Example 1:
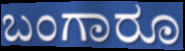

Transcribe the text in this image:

ಬಂಗಾರೂ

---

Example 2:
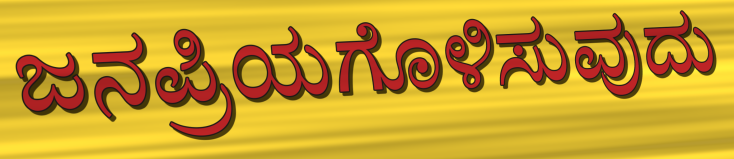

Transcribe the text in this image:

ಜನಪ್ರಿಯಗೊಳಿಸುವುದು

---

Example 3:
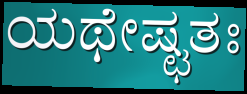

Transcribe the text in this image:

ಯಥೇಷ್ಟತಃ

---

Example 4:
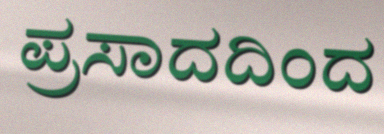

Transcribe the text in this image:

ಪ್ರಸಾದದಿಂದ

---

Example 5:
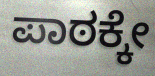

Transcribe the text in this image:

ಪಾಠಕ್ಕೇ